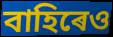
বাহিৰেও